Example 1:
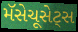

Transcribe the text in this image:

મૅસેચૂસેટ્સ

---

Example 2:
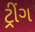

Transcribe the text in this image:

ટ્રીંગ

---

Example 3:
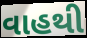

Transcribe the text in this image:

વાહથી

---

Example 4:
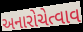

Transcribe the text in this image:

અનારોચેત્વાવ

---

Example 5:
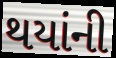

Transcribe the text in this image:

થયાંની